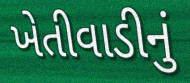
ખેતીવાડીનું